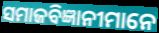
ସମାଜବିଜ୍ଞାନୀମାନେ